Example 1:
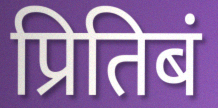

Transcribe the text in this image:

प्रितिबं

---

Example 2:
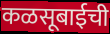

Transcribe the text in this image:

कळसूबाईची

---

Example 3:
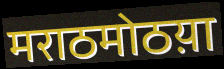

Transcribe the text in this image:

मराठमोठय़ा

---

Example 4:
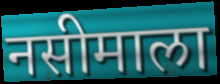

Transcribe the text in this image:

नसीमाला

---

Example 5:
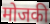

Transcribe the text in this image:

मोजकी